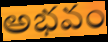
అభవం